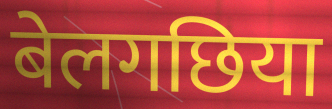
बेलगछिया